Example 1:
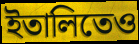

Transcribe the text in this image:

ইতালিতেও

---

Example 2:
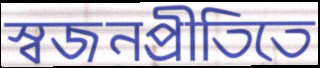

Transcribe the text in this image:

স্বজনপ্রীতিতে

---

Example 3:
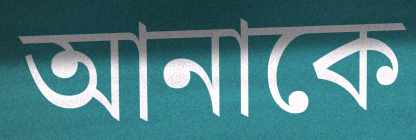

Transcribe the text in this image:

আনাকে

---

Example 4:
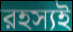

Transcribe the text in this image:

রহস্যই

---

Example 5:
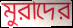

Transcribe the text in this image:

মুরাদের